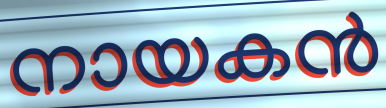
നായകൻ